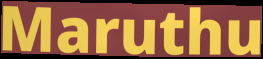
Maruthu